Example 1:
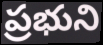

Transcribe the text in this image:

ప్రభుని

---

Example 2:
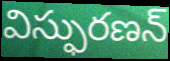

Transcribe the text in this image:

విస్ఫురణన్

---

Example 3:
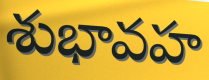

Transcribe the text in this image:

శుభావహ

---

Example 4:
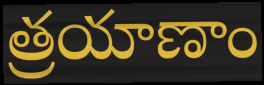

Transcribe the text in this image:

త్రయాణాం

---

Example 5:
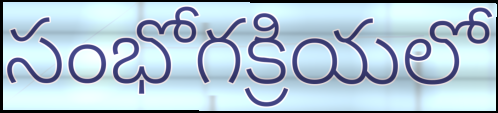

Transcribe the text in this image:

సంభోగక్రియలో